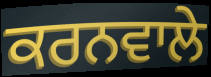
ਕਰਨਵਾਲੇ